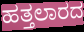
ಹತ್ತಲಾರದ